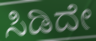
ಸಿಡಿದೇ